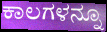
ಕಾಲಗಳನ್ನೂ